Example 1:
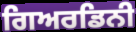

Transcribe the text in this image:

ਗਿਅਰਡਿਨੀ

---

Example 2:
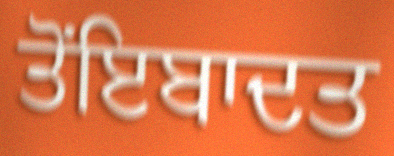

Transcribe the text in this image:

ਤੋਂਇਬਾਦਤ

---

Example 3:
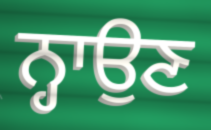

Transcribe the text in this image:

ਨ੍ਹਾਉਣ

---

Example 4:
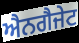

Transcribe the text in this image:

ਐਨਗੈਜੇਟ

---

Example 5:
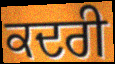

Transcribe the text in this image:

ਕਦਰੀ